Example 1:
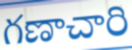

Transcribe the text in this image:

గణాచారి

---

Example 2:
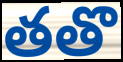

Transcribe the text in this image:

తతొ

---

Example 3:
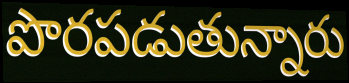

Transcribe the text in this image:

పొరపడుతున్నారు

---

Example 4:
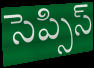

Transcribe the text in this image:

సెప్సిస్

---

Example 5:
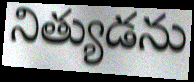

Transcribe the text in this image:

నిత్యుడను